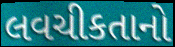
લવચીકતાનો